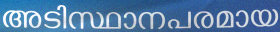
അടിസ്ഥാനപരമായ